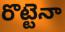
రొట్టెనా